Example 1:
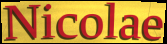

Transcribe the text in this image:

Nicolae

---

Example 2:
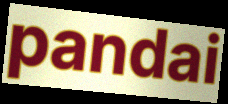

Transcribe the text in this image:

pandai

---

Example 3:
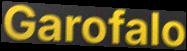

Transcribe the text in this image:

Garofalo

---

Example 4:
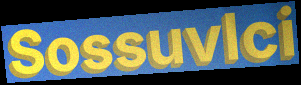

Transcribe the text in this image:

Sossuvlci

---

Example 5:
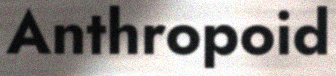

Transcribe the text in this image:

Anthropoid